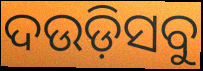
ଦଉଡ଼ିସବୁ